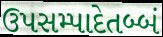
ઉપસમ્પાદેતબ્બં